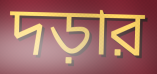
দড়ার